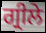
ਗ੍ਰੀਲੇ